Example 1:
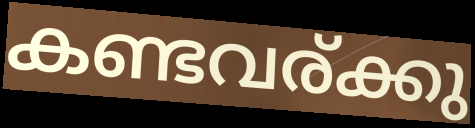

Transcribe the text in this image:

കണ്ടവര്ക്കു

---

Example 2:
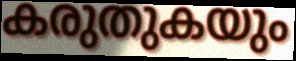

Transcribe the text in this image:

കരുതുകയും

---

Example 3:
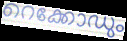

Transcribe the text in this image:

റെക്കോഡും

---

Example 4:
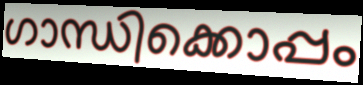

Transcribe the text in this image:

ഗാന്ധിക്കൊപ്പം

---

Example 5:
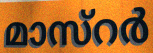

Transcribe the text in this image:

മാസ്റർ